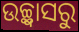
ଉଚ୍ଛ୍ୱାସରୁ